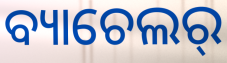
ବ୍ୟାଚେଲର୍